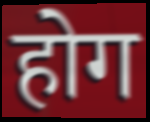
होग